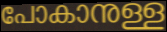
പോകാനുള്ള